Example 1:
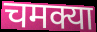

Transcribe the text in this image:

चमक्या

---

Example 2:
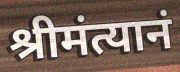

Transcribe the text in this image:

श्रीमंत्यानं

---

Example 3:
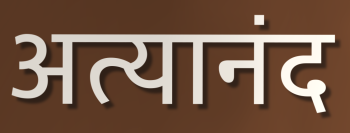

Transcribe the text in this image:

अत्यानंद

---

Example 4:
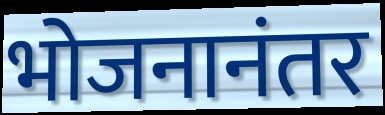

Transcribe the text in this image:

भोजनानंतर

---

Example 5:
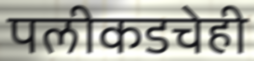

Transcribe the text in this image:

पलीकडचेही